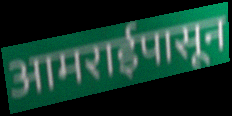
आमराईपासून